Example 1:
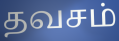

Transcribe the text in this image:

தவசம்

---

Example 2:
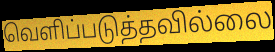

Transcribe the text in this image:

வெளிப்படுத்தவில்லை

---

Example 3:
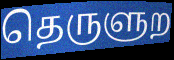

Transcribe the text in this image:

தெருளுற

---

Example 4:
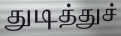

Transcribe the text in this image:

துடித்துச்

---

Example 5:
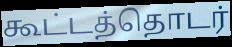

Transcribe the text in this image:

கூட்டத்தொடர்